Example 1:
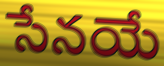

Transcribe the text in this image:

సేనయే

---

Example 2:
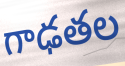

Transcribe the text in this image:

గాఢతల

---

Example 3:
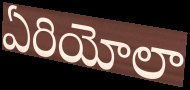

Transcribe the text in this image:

ఏరియోలా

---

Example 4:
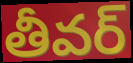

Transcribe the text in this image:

తీవర్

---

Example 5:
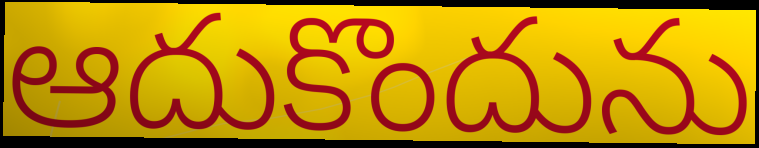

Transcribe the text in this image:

ఆదుకొందును